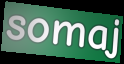
somaj